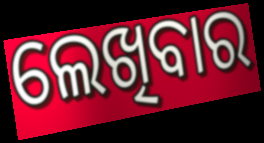
ଲେଖିବାର